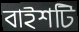
বাইশটি